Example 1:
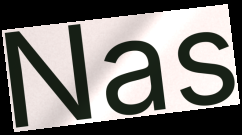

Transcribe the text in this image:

Nas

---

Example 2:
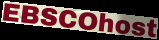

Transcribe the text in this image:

EBSCOhost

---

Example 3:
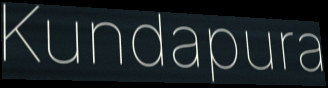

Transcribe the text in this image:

Kundapura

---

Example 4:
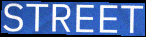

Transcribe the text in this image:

STREET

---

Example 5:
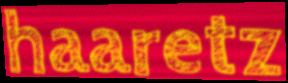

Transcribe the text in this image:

haaretz